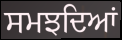
ਸਮਝਦਿਆਂ